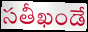
సతీఖండే